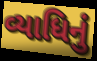
વ્યાધિનું